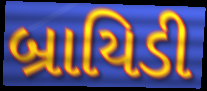
બ્રાયિડી